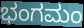
ಭಂಗಮಂ